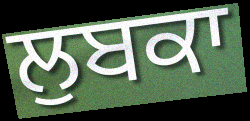
ਲੁਬਕਾ